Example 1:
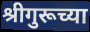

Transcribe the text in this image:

श्रीगुरूच्या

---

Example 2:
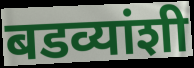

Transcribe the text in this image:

बडव्यांशी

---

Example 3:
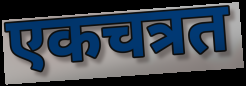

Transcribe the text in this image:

एकचत्रत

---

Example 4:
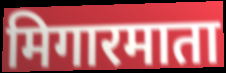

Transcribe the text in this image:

मिगारमाता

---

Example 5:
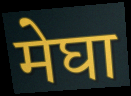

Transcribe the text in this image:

मेघा